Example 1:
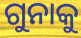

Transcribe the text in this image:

ଗୁନାକୁ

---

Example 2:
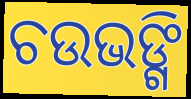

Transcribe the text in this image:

ଚଉଭଙ୍ଗି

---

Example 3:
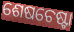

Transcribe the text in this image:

ଶେଷଚେଷ୍ଟା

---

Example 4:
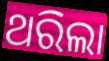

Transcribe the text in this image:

ଥରିଲା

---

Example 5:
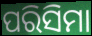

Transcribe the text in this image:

ପରିସିମା